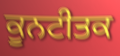
ਕੂਨਟੀਤਕ